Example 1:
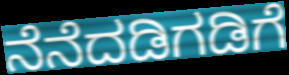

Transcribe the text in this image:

ನೆನೆದಡಿಗಡಿಗೆ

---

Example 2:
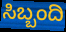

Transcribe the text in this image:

ಸಿಬ್ಬಂದಿ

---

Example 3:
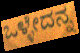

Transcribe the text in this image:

ಒಳ್ಳೇದನ್ನ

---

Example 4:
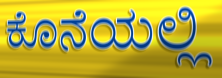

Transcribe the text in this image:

ಕೊನೆಯಲ್ಲಿ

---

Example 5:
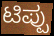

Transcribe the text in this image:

ಟಿಪ್ಪು